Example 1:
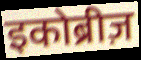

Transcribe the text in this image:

इकोब्रीज़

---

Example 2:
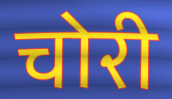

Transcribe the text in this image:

चोरी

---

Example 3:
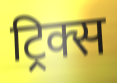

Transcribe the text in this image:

ट्रिक्‍स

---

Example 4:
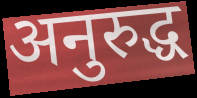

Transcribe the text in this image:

अनुरुद्ध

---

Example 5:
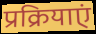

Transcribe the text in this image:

प्रक्रियाएं